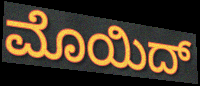
ಮೊಯಿದ್